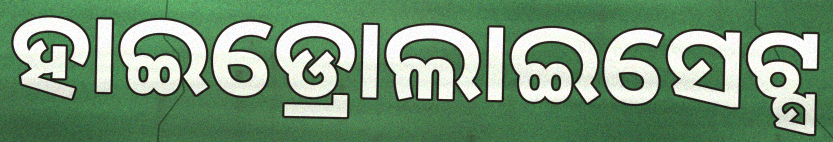
ହାଇଡ୍ରୋଲାଇସେଟ୍ସ